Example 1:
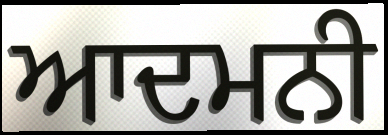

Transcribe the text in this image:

ਆਦਮਨੀ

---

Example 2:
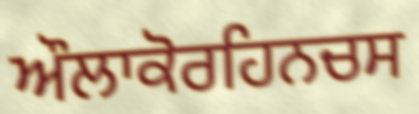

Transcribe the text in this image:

ਔਲਾਕੋਰਹਿਨਚਸ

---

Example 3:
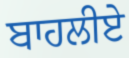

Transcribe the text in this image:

ਬਾਹਲੀਏ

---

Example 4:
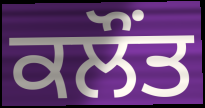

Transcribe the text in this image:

ਕਲੌਂਤ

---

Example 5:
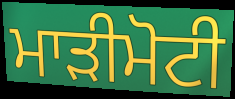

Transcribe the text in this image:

ਮਾੜੀਮੋਟੀ